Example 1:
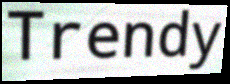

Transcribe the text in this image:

Trendy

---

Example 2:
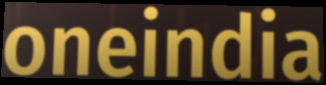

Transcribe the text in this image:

oneindia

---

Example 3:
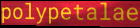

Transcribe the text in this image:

polypetalae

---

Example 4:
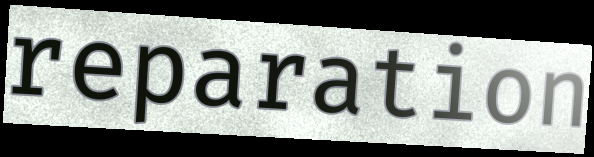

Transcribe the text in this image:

reparation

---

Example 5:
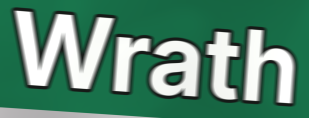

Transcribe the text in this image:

Wrath